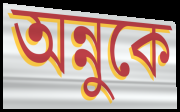
অন্নুকে